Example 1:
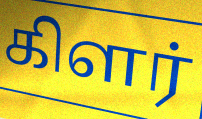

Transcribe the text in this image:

கிளர்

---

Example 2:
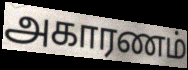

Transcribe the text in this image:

அகாரணம்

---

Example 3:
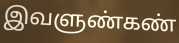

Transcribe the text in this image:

இவளுண்கண்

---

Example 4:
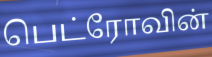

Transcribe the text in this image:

பெட்ரோவின்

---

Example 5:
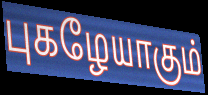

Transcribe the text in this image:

புகழேயாகும்